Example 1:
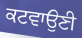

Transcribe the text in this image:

ਕਟਵਾਉਣੀ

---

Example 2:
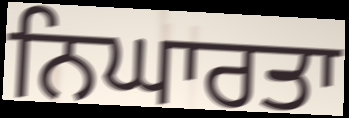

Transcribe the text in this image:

ਨਿਘਾਰਤਾ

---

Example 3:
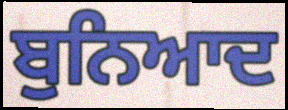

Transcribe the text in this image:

ਬੁਨਿਆਦ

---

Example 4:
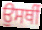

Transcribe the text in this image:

ਉਸਥੀਂ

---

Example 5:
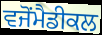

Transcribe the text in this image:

ਵਜੋਂਮੈਡੀਕਲ